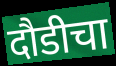
दौडीचा